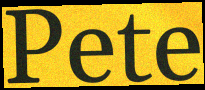
Pete